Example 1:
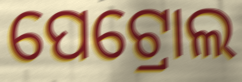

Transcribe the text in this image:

ପେଟ୍ରୋଲ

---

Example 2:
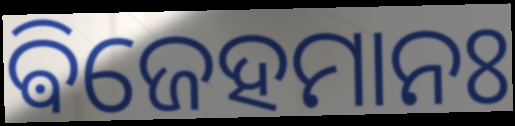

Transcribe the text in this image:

ଵିଜେହମାନଃ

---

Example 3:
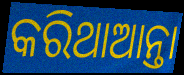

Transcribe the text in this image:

କରିଥାଆନ୍ତା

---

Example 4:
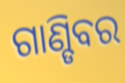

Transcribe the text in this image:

ଗାଣ୍ଡିବର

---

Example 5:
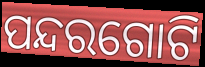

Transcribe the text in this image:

ପନ୍ଦରଗୋଟି